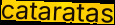
cataratas